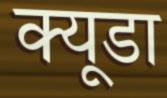
क्यूडा